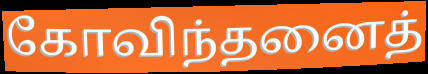
கோவிந்தனைத்